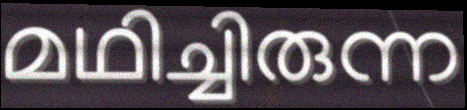
മഥിച്ചിരുന്ന